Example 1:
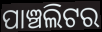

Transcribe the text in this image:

ପାଞ୍ଚଲିଟର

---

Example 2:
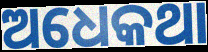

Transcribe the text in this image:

ଅଧେକଥା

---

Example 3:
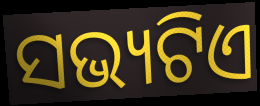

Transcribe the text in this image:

ସଭ୍ୟଟିଏ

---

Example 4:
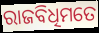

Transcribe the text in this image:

ରାଜବିଧିମତେ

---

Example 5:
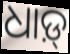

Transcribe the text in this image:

ଧାଡ଼୍